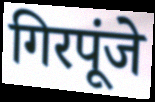
गिरपूंजे